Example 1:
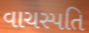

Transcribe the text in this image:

વાચસ્પતિ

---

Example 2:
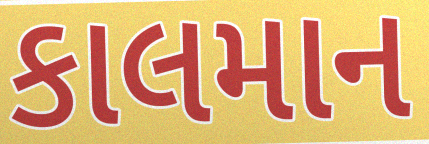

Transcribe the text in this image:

કાલમાન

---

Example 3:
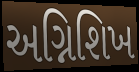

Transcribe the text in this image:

અગ્નિશિખ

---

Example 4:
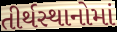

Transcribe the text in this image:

તીર્થસ્થાનોમાં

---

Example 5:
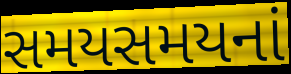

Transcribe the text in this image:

સમયસમયનાં